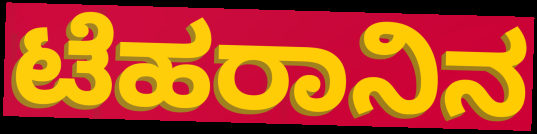
ಟೆಹರಾನಿನ